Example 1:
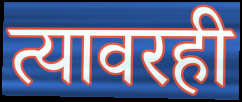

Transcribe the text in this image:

त्यावरही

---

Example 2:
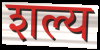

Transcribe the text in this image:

शल्‍य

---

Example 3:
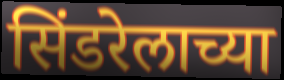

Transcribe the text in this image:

सिंडरेलाच्या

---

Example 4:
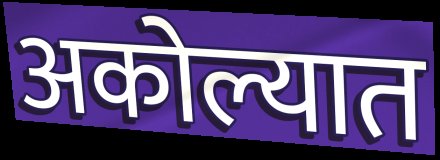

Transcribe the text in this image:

अकोल्यात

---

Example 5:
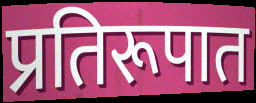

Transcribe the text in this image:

प्रतिरूपात